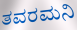
ತವರಮನಿ